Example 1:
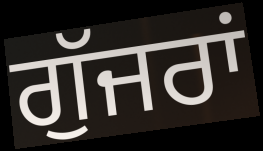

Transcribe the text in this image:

ਗੁੱਜਰਾਂ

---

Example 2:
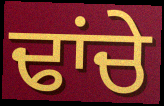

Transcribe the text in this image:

ਢਾਂਚੇ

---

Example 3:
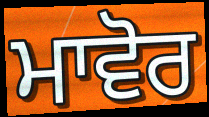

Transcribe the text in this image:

ਮਾਵੋਰ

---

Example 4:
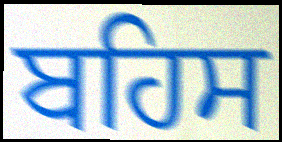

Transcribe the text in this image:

ਬਹਿਸ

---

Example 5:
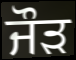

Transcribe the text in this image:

ਜੌੜ